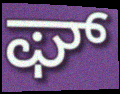
ಘ್